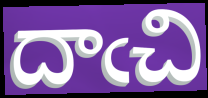
దాఁచి